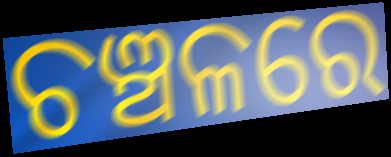
ଚଞ୍ଚଳରେ